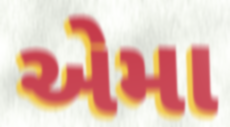
એમા